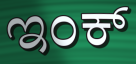
ಇಂಕ್